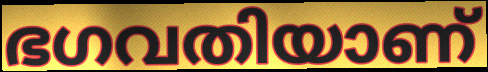
ഭഗവതിയാണ്